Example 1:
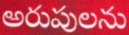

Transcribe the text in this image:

అరుపులను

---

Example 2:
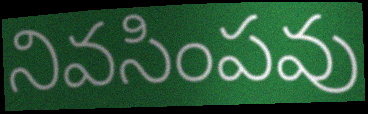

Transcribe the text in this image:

నివసింపవు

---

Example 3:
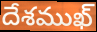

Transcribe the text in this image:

దేశముఖ్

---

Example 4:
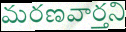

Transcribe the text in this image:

మరణవార్తని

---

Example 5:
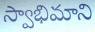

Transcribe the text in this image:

స్వాభిమాని